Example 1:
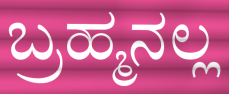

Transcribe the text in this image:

ಬ್ರಹ್ಮನಲ್ಲ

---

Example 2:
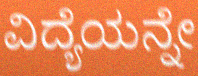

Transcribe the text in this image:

ವಿದ್ಯೆಯನ್ನೇ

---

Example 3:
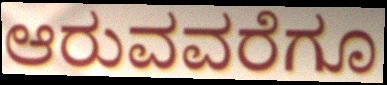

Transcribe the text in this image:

ಆರುವವರೆಗೂ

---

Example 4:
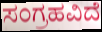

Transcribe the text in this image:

ಸಂಗ್ರಹವಿದೆ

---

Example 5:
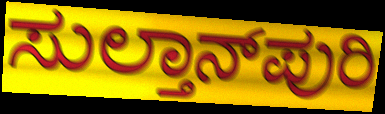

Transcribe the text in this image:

ಸುಲ್ತಾನ್‌ಪುರಿ